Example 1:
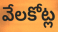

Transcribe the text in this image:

వేలకోట్ల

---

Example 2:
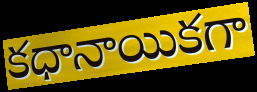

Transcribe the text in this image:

కధానాయికగా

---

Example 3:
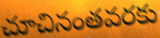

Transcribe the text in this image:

చూచినంతవరకు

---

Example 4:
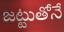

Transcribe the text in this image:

జట్టుతోనే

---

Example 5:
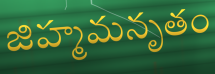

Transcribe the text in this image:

జిహ్మమనృతం